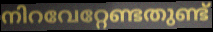
നിറവേറ്റേണ്ടതുണ്ട്